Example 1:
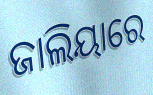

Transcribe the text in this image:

ଜାଲିୟାରେ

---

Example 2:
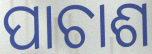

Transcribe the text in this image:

ପାଚାଶ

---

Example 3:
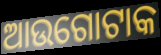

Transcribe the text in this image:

ଆଉଗୋଟାକ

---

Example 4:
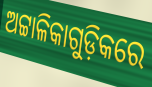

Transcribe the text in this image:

ଅଟ୍ଟାଳିକାଗୁଡ଼ିକରେ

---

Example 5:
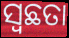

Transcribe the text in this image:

ସ୍ବଛତା